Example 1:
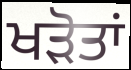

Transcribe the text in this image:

ਖੜੋਤਾਂ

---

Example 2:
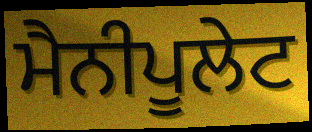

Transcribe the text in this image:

ਮੈਨੀਪੂਲੇਟ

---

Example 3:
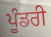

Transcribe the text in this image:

ਪੂੰਡਰੀ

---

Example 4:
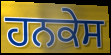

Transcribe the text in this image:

ਹਨਕੇਸ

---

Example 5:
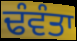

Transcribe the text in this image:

ਢੰਵੰਤਾ